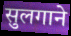
सुलगाने